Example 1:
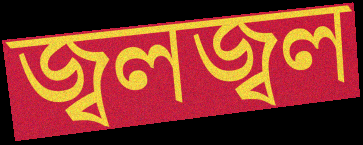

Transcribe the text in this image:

জ্বলজ্বল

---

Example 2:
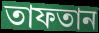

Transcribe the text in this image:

তাফতান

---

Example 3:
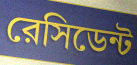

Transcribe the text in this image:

রেসিডেন্ট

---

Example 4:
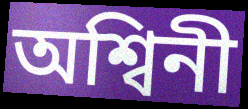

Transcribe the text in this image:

অশ্বিনী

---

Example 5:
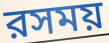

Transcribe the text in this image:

রসময়